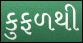
કુફળથી